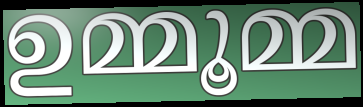
ഉമ്മൂമ്മ